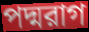
পদ্মরাগ